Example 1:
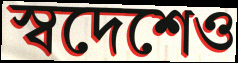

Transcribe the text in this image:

স্বদেশেও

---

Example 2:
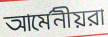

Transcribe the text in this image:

আর্মেনীয়রা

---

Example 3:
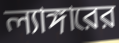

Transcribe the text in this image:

ল্যাঙ্গারের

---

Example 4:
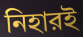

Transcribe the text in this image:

নিহারই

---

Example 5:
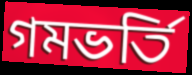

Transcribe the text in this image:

গমভর্তি